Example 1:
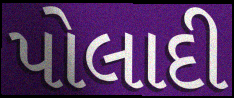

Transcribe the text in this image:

પોલાદી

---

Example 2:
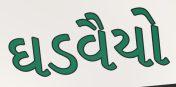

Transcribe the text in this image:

ઘડવૈયો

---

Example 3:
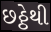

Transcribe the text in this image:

છઠ્ઠેથી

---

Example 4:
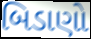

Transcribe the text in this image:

બિડાણો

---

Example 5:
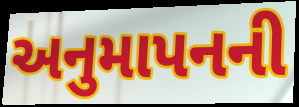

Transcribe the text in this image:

અનુમાપનની